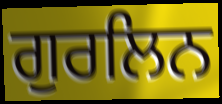
ਗੁਰਲਿਨ